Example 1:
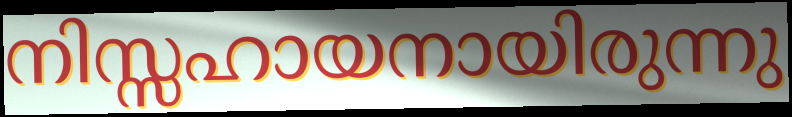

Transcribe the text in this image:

നിസ്സഹായനായിരുന്നു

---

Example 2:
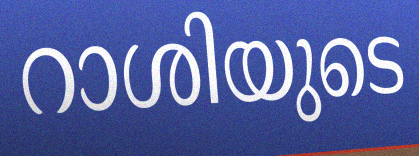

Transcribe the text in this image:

റാശിയുടെ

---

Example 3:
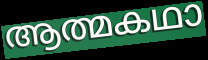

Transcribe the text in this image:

ആത്മകഥാ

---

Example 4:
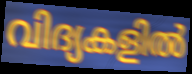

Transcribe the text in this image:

വിദ്യകളിൽ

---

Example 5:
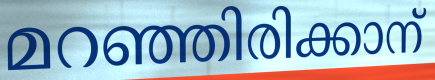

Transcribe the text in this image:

മറഞ്ഞിരിക്കാന്